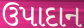
ઉપાદાન